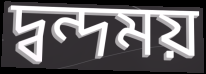
দ্বন্দময়